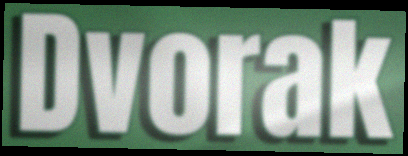
Dvorak